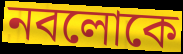
নবলোকে